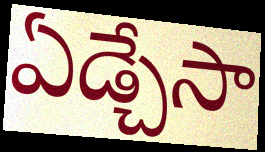
ఏడ్చేసా